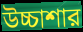
উচ্চাশার